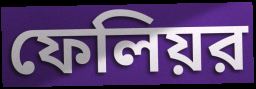
ফেলিয়র